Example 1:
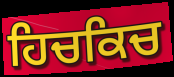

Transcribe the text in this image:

ਹਿਚਕਿਚ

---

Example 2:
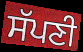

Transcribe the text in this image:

ਸੱਪਣੀ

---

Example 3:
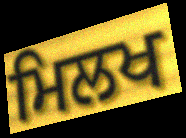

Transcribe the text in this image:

ਮਿਲਖ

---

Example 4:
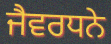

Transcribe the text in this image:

ਜੈਵਰਧਨੇ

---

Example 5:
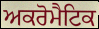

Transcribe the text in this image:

ਅਕਰੋਮੈਟਿਕ